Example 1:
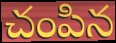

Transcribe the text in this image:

చంపిన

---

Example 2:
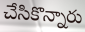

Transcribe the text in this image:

చేసికొన్నారు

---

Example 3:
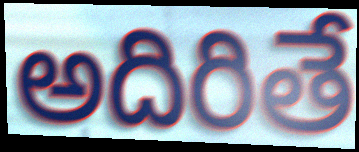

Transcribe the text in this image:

అదిరితే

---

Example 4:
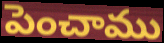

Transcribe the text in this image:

పెంచాము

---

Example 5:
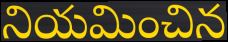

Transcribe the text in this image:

నియమించిన